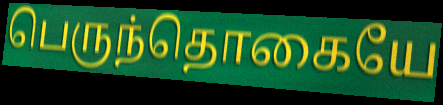
பெருந்தொகையே